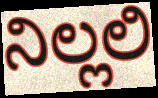
ನಿಲ್ಲಲಿ